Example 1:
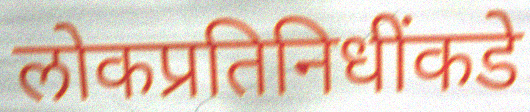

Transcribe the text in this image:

लोकप्रतिनिधींकडे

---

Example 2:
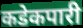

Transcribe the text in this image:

कडेकपारी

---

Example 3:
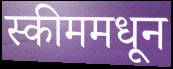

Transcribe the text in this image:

स्कीममधून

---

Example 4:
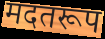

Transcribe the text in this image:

मदतरूप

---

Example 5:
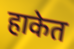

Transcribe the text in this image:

हाकेत